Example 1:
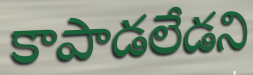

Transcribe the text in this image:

కాపాడలేడని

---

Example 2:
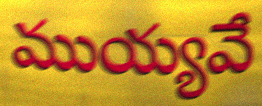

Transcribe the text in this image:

ముయ్యవే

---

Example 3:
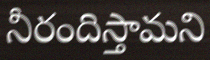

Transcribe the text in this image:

నీరందిస్తామని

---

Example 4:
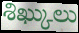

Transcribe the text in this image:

శిఖ్కులు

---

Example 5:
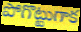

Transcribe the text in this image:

పోగొట్టుగాక